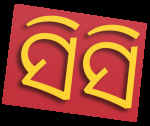
ସିସି